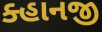
ક્હાનજી